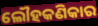
ଲୌହକଣିକାର